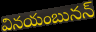
వినయంబునన్